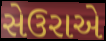
સેઉરાએ